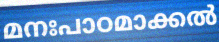
മനഃപാഠമാക്കൽ